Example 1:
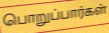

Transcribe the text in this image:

பொறுப்பார்கள்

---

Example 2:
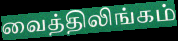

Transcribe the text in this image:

வைத்திலிங்கம்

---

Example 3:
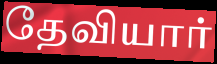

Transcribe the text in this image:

தேவியார்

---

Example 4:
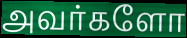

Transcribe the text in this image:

அவர்களோ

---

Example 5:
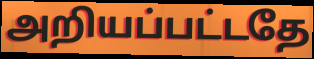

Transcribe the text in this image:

அறியப்பட்டதே